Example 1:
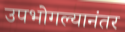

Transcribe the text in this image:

उपभोगल्यानंतर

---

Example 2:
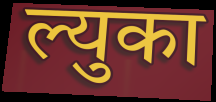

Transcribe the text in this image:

ल्युका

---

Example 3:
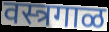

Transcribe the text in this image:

वस्त्रगाळ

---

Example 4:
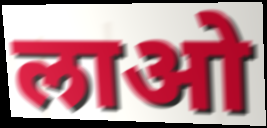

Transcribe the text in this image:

लाओ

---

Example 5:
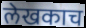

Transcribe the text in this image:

लेखकाच